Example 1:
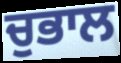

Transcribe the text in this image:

ਚੁਭਾਲ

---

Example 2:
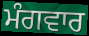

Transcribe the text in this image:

ਮੰਗਵਾਰ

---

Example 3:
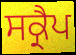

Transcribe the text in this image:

ਸਕ੍ਰੈਪ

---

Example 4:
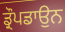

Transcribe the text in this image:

ਡ੍ਰੌਪਡਾਉਨ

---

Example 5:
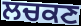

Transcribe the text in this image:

ਲਚਕਣ